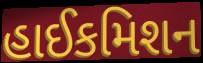
હાઈકમિશન